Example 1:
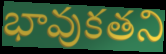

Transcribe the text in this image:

భావుకతని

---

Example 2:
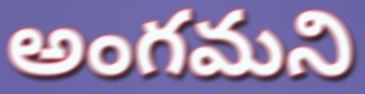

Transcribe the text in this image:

అంగమని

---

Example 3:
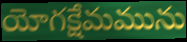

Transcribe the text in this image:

యోగక్షేమమును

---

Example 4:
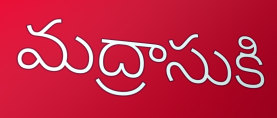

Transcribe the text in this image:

మద్రాసుకి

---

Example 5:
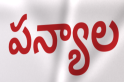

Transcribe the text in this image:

పన్యాల